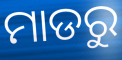
ମାଡରୁ